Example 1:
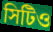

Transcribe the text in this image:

সিটিও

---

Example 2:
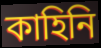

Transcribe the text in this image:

কাহিনি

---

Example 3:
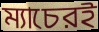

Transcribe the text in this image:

ম্যাচেরই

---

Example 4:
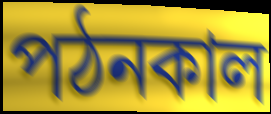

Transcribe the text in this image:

পঠনকাল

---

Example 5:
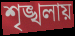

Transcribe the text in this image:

শৃঙ্খলায়